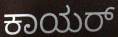
ಕಾಯರ್